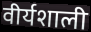
वीर्यशाली